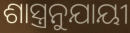
ଶାସ୍ତ୍ରନୁଯାୟୀ